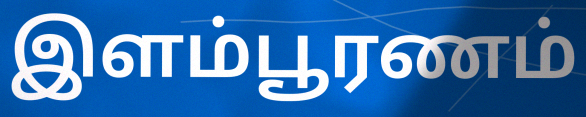
இளம்பூரணம்